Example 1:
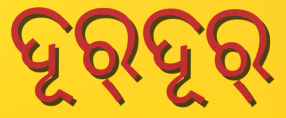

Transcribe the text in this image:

ଦୂର୍‌ଦୂର୍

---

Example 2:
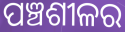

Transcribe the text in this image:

ପଞ୍ଚଶୀଳର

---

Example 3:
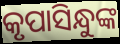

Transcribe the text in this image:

କୃପାସିନ୍ଧୁଙ୍କ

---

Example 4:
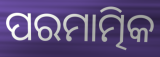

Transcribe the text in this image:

ପରମାତ୍ମିକ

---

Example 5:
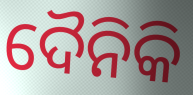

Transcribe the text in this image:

ଦୈନିକି